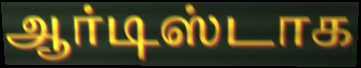
ஆர்டிஸ்டாக